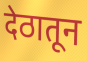
देठातून